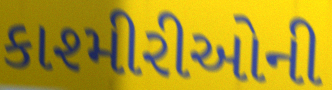
કાશ્મીરીઓની